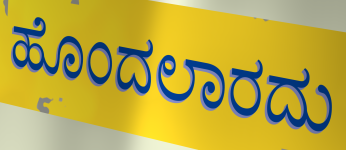
ಹೊಂದಲಾರದು